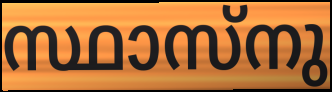
സ്ഥാസ്നു